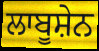
ਲਾਬੂਸ਼ੇਨ